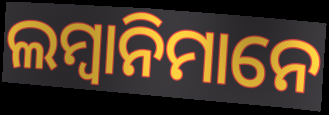
ଲମ୍ବାନିମାନେ